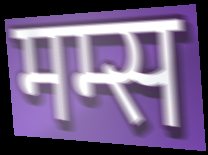
मम्स